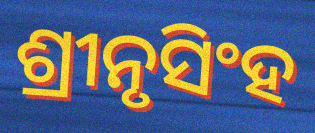
ଶ୍ରୀନୃସିଂହ